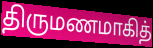
திருமணமாகித்